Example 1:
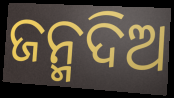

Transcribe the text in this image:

ଜନ୍ମଦିଅ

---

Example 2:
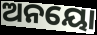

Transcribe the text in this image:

ଅନୟୋ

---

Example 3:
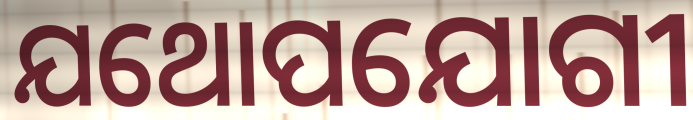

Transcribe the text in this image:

ଯଥୋପଯୋଗୀ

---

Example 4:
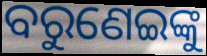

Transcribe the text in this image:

ବରୁଣେଇଙ୍କୁ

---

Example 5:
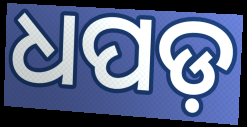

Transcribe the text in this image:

ଧପଡ଼